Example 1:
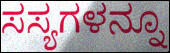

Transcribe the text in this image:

ಸಸ್ಯಗಳನ್ನೂ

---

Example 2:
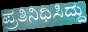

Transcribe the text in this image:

ಪ್ರತಿನಿಧಿಸಿದ್ದು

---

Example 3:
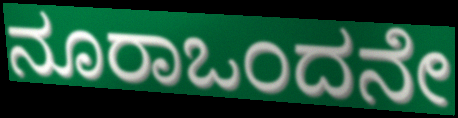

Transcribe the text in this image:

ನೂರಾಒಂದನೇ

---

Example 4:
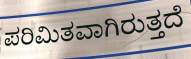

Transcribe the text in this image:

ಪರಿಮಿತವಾಗಿರುತ್ತದೆ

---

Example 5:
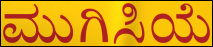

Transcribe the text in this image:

ಮುಗಿಸಿಯೆ